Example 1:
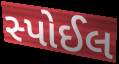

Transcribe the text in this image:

સ્પોઈલ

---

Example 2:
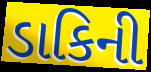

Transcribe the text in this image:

ડાકિની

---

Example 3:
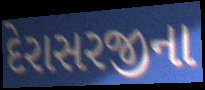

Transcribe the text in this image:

દેરાસરજીના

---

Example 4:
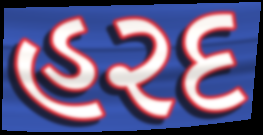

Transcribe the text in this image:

હરદ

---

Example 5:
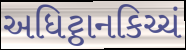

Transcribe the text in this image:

અધિટ્ઠાનકિચ્ચં